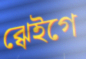
ঝ্ৱেইগে